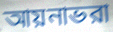
আয়নাভরা